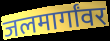
जलमार्गांवर